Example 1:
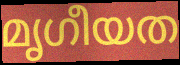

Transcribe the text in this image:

മൃഗീയത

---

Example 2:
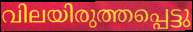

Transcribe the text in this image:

വിലയിരുത്തപ്പെട്ടു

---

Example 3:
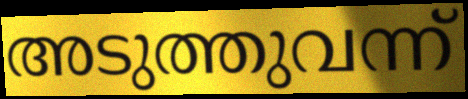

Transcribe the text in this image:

അടുത്തുവന്ന്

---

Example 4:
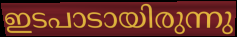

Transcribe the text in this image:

ഇടപാടായിരുന്നു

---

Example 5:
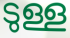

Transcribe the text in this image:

ടുള്ള